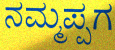
ನಮ್ಮಪ್ಪಗ